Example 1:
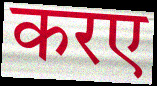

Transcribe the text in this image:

करए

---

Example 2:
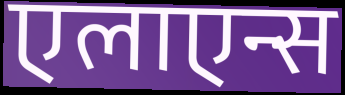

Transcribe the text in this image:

एलाएन्स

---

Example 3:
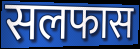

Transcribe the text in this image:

सलफास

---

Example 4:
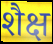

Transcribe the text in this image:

शैक्ष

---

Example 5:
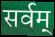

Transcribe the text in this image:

सर्वम्